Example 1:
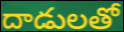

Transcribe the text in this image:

దాడులతో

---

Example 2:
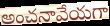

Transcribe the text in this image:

అంచనావేయగా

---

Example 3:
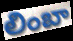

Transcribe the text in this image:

లింబా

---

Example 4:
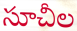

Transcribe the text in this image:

సూచీల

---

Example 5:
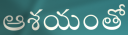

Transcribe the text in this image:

ఆశయంతో